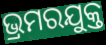
ଭ୍ରମରଯୁକ୍ତ